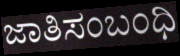
ಜಾತಿಸಂಬಂಧಿ